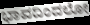
ಭಾವದಿಂದಲೋ